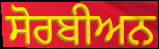
ਸੋਰਬੀਅਨ